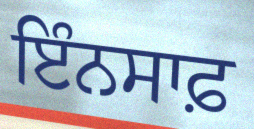
ਇੰਨਸਾਫ਼